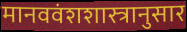
मानववंशशास्त्रानुसार